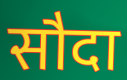
सौदा